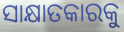
ସାକ୍ଷାତକାରକୁ